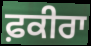
ਫ਼ਕੀਰਾ